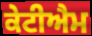
ਕੇਟੀਐਮ